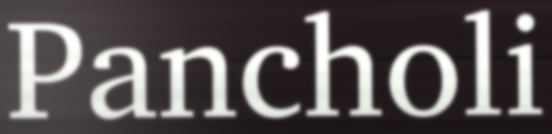
Pancholi